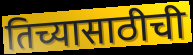
तिच्यासाठीची